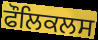
ਫੌਲਿਕਲਸ